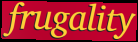
frugality